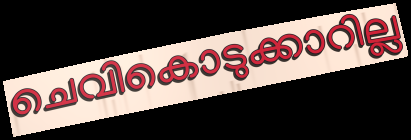
ചെവികൊടുക്കാറില്ല